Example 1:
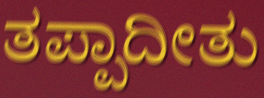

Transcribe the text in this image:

ತಪ್ಪಾದೀತು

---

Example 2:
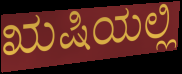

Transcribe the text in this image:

ಋಷಿಯಲ್ಲಿ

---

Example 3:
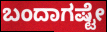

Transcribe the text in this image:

ಬಂದಾಗಷ್ಟೇ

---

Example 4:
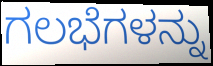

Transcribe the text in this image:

ಗಲಭೆಗಳನ್ನು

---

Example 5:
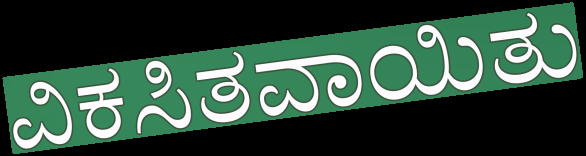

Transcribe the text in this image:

ವಿಕಸಿತವಾಯಿತು